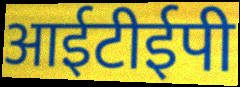
आईटीईपी